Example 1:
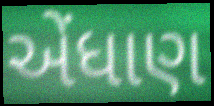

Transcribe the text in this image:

એંધાણ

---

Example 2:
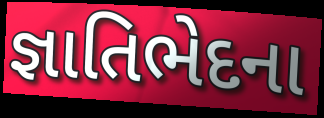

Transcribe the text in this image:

જ્ઞાતિભેદના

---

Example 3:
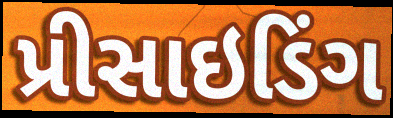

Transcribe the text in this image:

પ્રીસાઇડિંગ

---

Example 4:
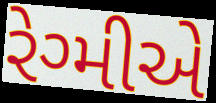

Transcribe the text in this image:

રેગ્મીએ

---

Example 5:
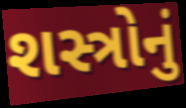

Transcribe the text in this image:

શસ્ત્રોનું